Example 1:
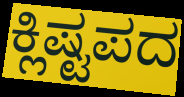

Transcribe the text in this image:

ಕ್ಲಿಷ್ಟಪದ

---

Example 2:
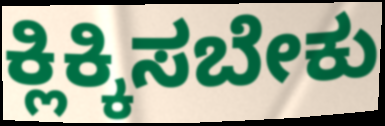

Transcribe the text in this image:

ಕ್ಲಿಕ್ಕಿಸಬೇಕು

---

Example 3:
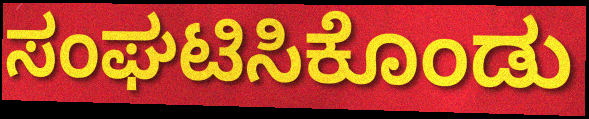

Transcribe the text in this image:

ಸಂಘಟಿಸಿಕೊಂಡು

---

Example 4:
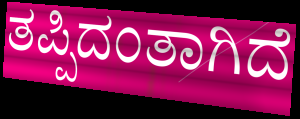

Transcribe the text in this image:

ತಪ್ಪಿದಂತಾಗಿದೆ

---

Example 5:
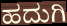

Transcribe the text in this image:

ಹದುಗಿ